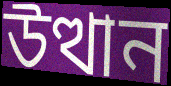
উত্থান